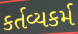
કર્તવ્યકર્મ